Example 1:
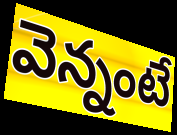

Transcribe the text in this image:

వెన్నంటే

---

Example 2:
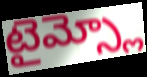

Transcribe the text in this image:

టైమ్స్లో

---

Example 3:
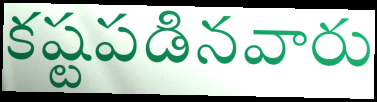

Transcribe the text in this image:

కష్టపడినవారు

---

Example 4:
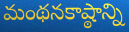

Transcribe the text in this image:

మంథనకాష్ఠాన్ని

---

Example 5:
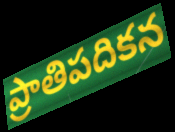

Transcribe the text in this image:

ప్రాతిపదికన